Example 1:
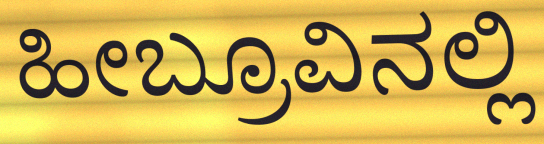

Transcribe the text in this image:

ಹೀಬ್ರೂವಿನಲ್ಲಿ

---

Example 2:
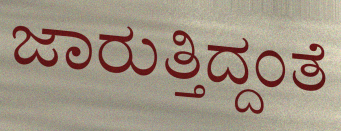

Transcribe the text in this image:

ಜಾರುತ್ತಿದ್ದಂತೆ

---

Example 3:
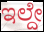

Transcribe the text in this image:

ಇಲ್ದೇ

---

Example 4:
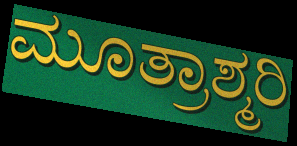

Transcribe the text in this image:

ಮೂತ್ರಾಶ್ಮರಿ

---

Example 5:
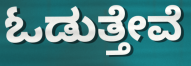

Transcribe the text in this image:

ಓಡುತ್ತೇವೆ